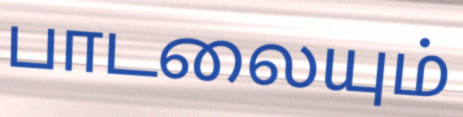
பாடலையும்